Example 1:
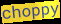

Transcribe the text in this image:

choppy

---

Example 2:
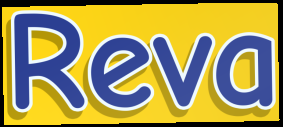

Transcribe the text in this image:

Reva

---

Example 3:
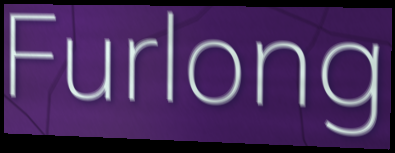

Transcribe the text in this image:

Furlong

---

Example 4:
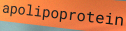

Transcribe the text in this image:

apolipoprotein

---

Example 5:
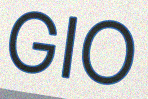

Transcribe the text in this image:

GIO